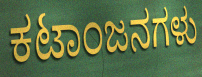
ಕಟಾಂಜನಗಳು